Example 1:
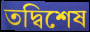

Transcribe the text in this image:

তদ্বিশেষ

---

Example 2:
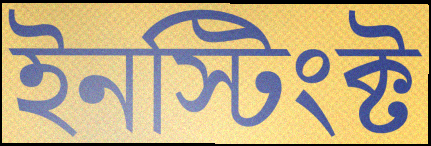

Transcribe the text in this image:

ইনস্টিংক্ট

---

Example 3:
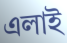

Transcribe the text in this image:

এলাই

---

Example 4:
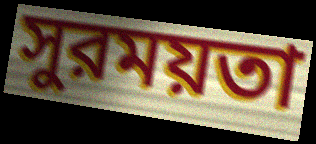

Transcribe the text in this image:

সুরময়তা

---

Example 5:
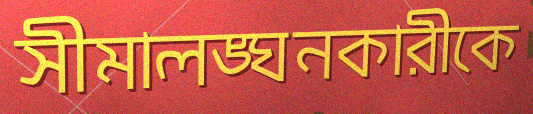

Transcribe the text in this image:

সীমালঙ্ঘনকারীকে